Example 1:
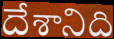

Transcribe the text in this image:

దేశానిది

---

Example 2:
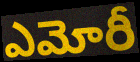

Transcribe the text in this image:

ఎమోరీ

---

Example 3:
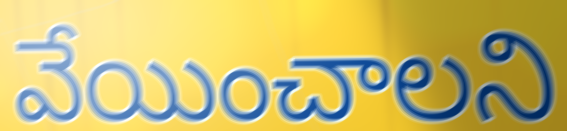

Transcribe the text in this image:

వేయించాలని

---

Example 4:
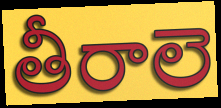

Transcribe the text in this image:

తీరాలె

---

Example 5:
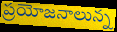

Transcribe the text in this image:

ప్రయోజనాలున్న